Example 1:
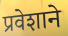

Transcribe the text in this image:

प्रवेशाने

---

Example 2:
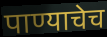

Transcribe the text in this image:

पाण्याचेच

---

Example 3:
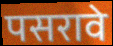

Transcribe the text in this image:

पसरावे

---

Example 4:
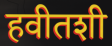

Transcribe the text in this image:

हवीतशी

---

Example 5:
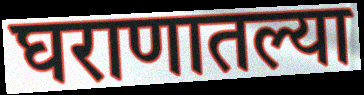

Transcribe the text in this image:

घराणातल्या